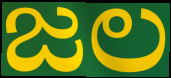
జల